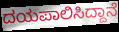
ದಯಪಾಲಿಸಿದ್ದಾನೆ